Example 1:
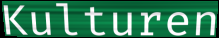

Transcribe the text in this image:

Kulturen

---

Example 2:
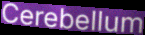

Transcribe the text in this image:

Cerebellum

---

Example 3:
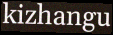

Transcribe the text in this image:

kizhangu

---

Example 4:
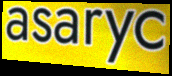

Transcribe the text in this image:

asaryc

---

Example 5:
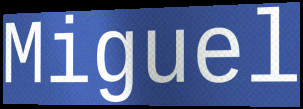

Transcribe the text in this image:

Miguel